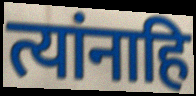
त्यांनाहि